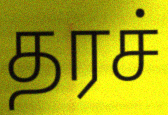
தரச்